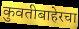
कुवतीबाहेरचा